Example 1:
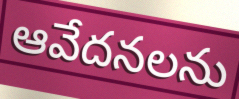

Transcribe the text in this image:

ఆవేదనలను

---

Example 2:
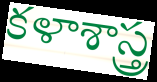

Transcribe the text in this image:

కళాశాస్త్ర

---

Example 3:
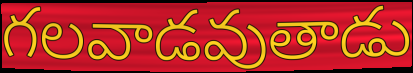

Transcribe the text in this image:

గలవాడవుతాడు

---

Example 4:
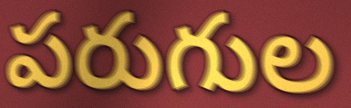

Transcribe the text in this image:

పరుగుల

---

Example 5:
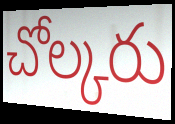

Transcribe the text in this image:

చోల్కరు